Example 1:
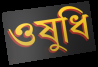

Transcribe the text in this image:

ওষুধি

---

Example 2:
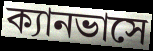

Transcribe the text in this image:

ক্যানভাসে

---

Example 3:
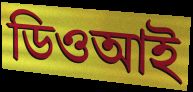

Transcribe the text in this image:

ডিওআই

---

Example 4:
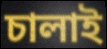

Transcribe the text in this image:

চালাই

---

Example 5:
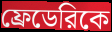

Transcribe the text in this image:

ফ্রেডেরিকে